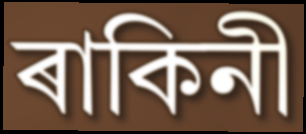
ৰাকিনী